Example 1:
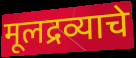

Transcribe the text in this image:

मूलद्रव्याचे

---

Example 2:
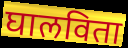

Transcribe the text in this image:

घालविता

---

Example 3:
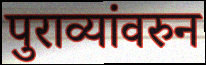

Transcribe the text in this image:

पुराव्यांवरुन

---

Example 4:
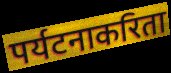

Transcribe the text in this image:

पर्यटनाकरिता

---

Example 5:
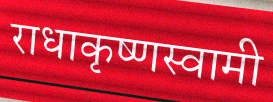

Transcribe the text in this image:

राधाकृष्णस्वामी